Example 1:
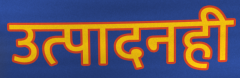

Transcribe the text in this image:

उत्पादनही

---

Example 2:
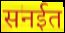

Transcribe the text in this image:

सनईत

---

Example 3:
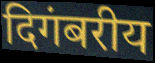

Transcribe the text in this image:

दिगंबरीय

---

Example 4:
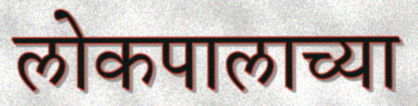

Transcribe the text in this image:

लोकपालाच्या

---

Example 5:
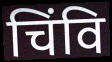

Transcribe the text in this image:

चिंवि